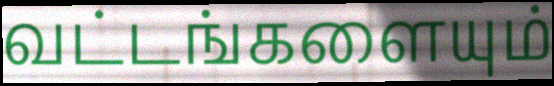
வட்டங்களையும்